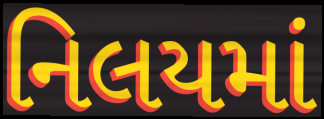
નિલયમાં